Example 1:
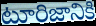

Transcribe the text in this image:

టూరిజానికి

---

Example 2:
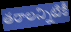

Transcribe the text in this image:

తరాలన్నిటికీ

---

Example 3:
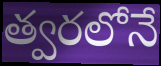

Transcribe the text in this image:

త్వరలోనే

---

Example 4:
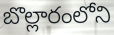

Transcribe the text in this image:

బొల్లారంలోని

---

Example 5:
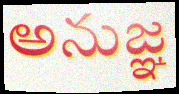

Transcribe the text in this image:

అనుజ్ఞ